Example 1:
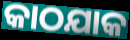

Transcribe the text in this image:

କାଠଯାକ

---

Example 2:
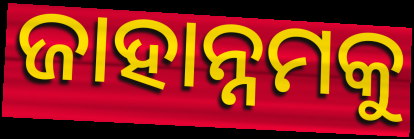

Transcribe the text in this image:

ଜାହାନ୍ନମକୁ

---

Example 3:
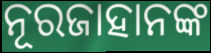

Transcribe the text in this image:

ନୂରଜାହାନଙ୍କ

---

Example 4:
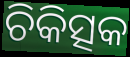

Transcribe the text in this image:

ଚିକିତ୍ସକ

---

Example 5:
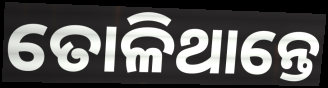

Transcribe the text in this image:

ତୋଳିଥାନ୍ତେ